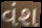
વંશ